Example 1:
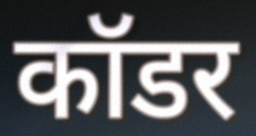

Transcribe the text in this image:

कॉडर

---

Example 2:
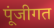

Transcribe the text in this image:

पूंजीगत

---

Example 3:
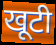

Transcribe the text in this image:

खूटी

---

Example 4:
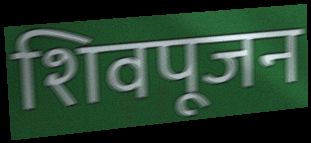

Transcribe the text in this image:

शिवपूजन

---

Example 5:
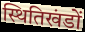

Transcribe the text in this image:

स्थितिखंडों